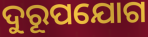
ଦୁରୂପଯୋଗ